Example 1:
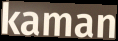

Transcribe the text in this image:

kaman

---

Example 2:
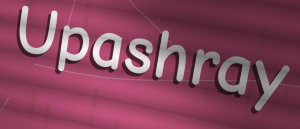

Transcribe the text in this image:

Upashray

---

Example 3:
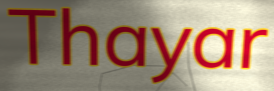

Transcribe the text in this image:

Thayar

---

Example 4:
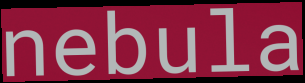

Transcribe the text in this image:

nebula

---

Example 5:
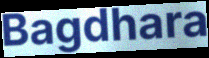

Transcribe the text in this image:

Bagdhara